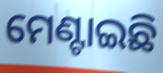
ମେଣ୍ଟାଇଛି